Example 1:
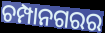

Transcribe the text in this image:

ଚମ୍ପାନଗରର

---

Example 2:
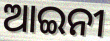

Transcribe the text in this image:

ଆଇନୀ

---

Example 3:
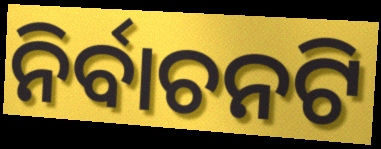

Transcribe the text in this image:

ନିର୍ବାଚନଟି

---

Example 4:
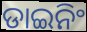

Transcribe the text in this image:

ଡାଇନିଂ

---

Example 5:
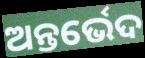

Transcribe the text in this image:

ଅନ୍ତର୍ଭେଦ